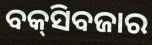
ବକ୍‍ସିବଜାର